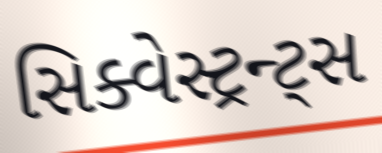
સિક્વેસ્ટ્રન્ટ્સ